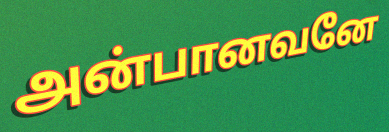
அன்பானவனே